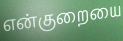
என்குறையை